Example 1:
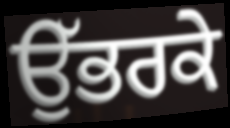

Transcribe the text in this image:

ਉੱਭਰਕੇ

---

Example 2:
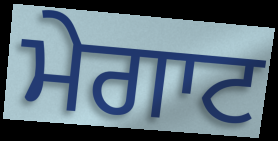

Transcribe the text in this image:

ਮੇਗਾਟ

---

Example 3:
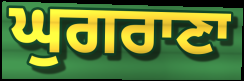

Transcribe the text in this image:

ਘੁਗਰਾਣਾ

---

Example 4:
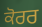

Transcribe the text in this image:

ਕੋਰਰ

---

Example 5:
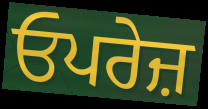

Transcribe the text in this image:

ਓਪਰੇਜ਼